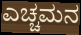
ಎಚ್ಚಮನ